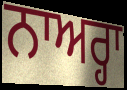
ਨਾਅਰ੍ਹਾ